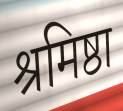
श्रमिष्ठा